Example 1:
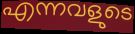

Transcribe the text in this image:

എന്നവളുടെ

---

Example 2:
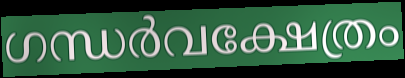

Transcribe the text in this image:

ഗന്ധർവക്ഷേത്രം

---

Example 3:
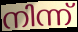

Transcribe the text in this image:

നിന്ന്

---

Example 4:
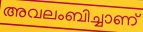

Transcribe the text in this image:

അവലംബിച്ചാണ്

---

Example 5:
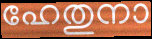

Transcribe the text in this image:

ഹേതുനാ